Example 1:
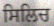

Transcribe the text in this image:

ਸਿਲਿਚ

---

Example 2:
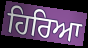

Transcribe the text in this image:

ਹਿਰਿਆ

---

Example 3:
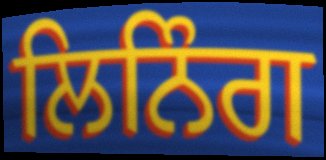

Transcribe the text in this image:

ਲਿਨਿੰਗ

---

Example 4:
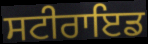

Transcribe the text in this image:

ਸਟੀਰਾਇਡ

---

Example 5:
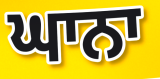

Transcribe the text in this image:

ਘਾਨਾ